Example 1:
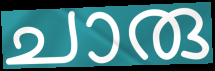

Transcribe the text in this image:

ചാരു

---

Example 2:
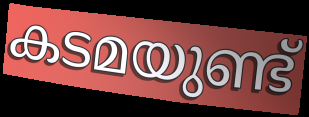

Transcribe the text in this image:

കടമയുണ്ട്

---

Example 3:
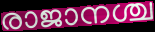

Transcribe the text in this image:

രാജാനശ്ച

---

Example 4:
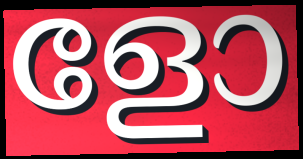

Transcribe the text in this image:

ളോ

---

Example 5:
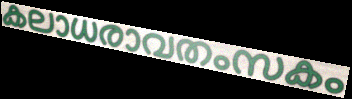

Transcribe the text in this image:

കലാധരാവതംസകം